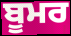
ਬੂਮਰ